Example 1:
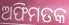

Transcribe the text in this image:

ଅଫିମତକ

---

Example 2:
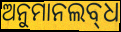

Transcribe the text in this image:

ଅନୁମାନଲବ୍‌ଧ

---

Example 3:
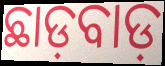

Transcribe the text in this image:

ଛାଡ଼ବାଡ଼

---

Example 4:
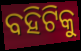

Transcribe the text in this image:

ବହିଟିକୁ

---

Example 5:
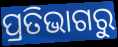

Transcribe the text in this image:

ପ୍ରତିଭାଗରୁ